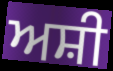
ਅਸ਼ੀ